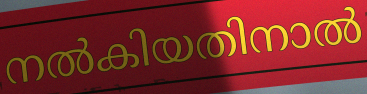
നൽകിയതിനാൽ